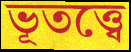
ভূতত্ত্বে